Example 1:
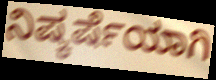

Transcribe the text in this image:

ನಿಷ್ಕರ್ಷೆಯಾಗಿ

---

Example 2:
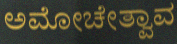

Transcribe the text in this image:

ಅಮೋಚೇತ್ವಾವ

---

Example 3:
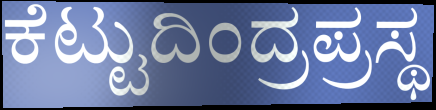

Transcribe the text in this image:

ಕೆಟ್ಟುದಿಂದ್ರಪ್ರಸ್ಥ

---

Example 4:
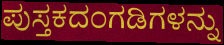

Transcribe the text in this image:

ಪುಸ್ತಕದಂಗಡಿಗಳನ್ನು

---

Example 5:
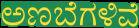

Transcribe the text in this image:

ಅಣಬೆಗಳಿವೆ